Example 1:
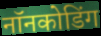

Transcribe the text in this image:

नॉनकोडिंग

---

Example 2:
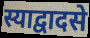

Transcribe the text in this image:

स्याद्वादसे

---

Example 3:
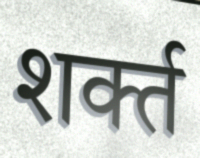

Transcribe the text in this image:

शर्क्त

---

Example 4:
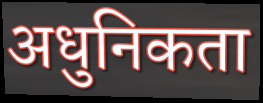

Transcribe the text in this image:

अधुनिकता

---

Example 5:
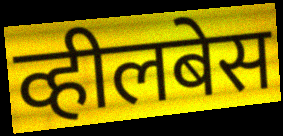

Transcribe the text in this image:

व्हीलबेस